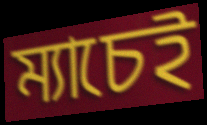
ম্যাচেই